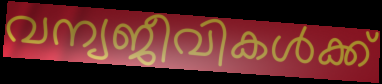
വന്യജീവികൾക്ക്